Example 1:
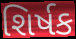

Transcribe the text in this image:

શિર્ષક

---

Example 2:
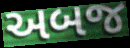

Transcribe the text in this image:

અબજ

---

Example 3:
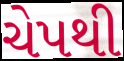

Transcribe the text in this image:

ચેપથી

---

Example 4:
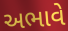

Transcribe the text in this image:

અભાવે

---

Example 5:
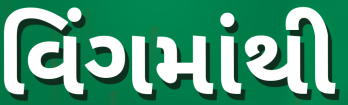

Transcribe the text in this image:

વિંગમાંથી